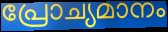
പ്രോച്യമാനം